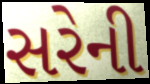
સરેની